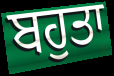
ਬਹੁਤਾ